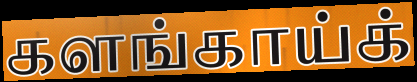
களங்காய்க்